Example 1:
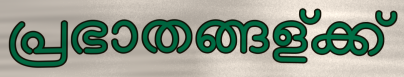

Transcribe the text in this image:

പ്രഭാതങ്ങള്ക്ക്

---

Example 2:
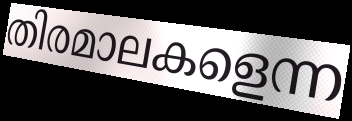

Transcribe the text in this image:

തിരമാലകളെന്ന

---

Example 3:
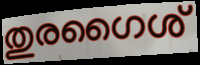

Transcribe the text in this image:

തുരഗൈശ്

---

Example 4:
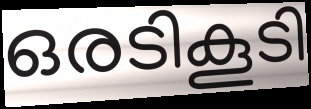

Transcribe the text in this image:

ഒരടികൂടി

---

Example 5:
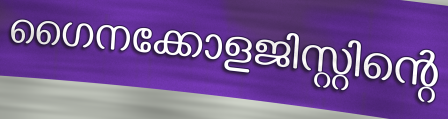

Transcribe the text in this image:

ഗൈനക്കോളജിസ്റ്റിന്റെ